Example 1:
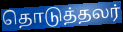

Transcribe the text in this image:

தொடுத்தலர்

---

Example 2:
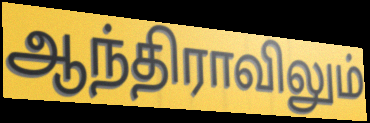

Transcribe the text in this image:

ஆந்திராவிலும்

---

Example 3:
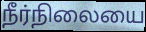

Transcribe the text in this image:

நீர்நிலையை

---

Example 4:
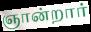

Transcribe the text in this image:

ஞான்றார்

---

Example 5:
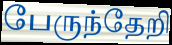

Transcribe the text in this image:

பேருந்தேறி